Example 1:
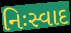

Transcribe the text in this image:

નિઃસ્વાદ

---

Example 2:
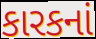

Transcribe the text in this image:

કારકનાં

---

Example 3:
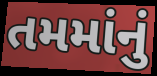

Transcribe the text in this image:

તમમાંનું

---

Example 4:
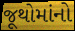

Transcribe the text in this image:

જૂથોમાંનો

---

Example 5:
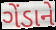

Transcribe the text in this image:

ગેંડાને